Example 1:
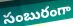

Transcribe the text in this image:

సంబురంగా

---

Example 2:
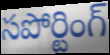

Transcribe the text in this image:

సపోర్టింగ్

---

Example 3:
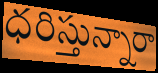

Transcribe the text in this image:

ధరిస్తున్నారా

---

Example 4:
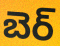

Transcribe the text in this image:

బెర్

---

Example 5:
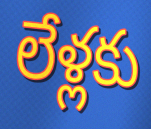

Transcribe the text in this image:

లేళ్లకు